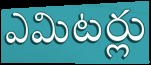
ఎమిటర్లు